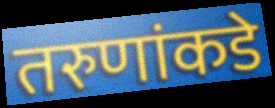
तरुणांकडे